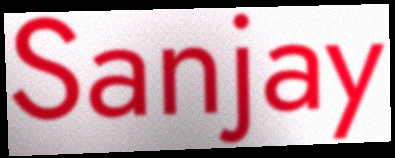
Sanjay